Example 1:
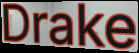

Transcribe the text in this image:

Drake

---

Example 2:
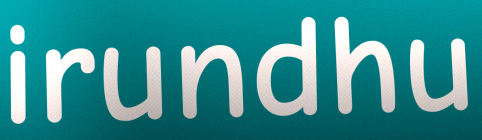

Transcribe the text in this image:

irundhu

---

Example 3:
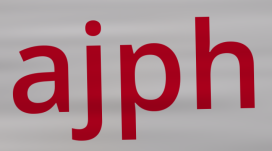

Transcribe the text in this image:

ajph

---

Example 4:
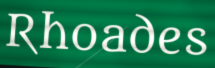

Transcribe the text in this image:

Rhoades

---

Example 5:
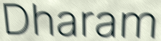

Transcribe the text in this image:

Dharam